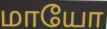
மாயோ